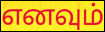
எனவும்